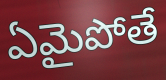
ఏమైపోతే